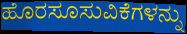
ಹೊರಸೂಸುವಿಕೆಗಳನ್ನು